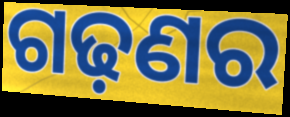
ଗଢ଼ଣର